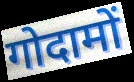
गोदामों